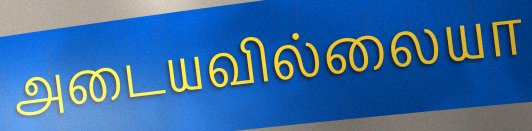
அடையவில்லையா